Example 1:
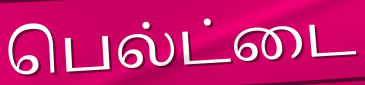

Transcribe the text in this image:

பெல்ட்டை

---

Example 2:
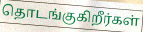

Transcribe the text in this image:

தொடங்குகிறீர்கள்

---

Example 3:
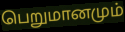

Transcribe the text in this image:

பெறுமானமும்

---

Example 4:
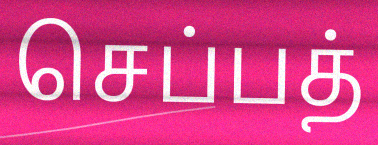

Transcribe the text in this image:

செப்பத்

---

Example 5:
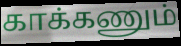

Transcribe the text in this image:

காக்கணும்